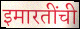
इमारतींची